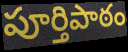
పూర్తిపాఠం